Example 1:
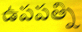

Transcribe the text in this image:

ఉపపత్ని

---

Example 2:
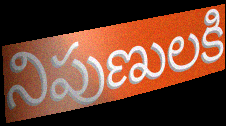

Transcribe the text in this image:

నిపుణులకి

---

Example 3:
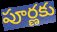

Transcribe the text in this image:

పూర్ణకు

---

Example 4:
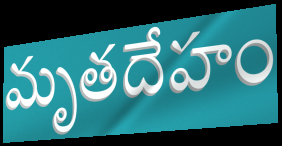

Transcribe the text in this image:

మృతదేహం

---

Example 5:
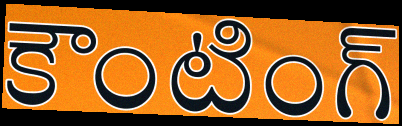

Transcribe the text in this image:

కౌంటింగ్